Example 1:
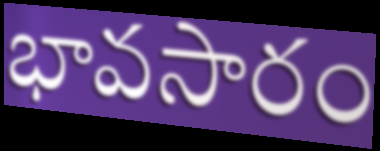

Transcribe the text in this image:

భావసారం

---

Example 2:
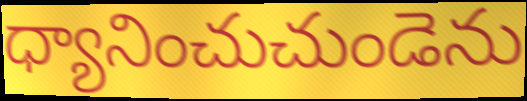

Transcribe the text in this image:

ధ్యానించుచుండెను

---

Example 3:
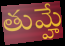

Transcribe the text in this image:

తుమ్హే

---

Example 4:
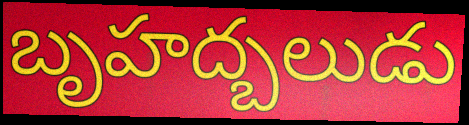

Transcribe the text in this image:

బృహద్బలుడు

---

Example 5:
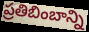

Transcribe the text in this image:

ప్రతిబింబాన్ని